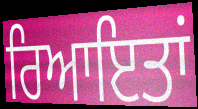
ਰਿਆਇਤਾਂ